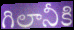
గిలానీకి